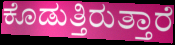
ಕೊಡುತ್ತಿರುತ್ತಾರೆ